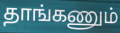
தாங்கணும்